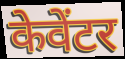
केवेंटर